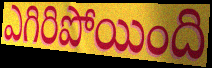
ఎగిరిపోయింది